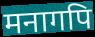
मनागपि